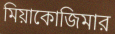
মিয়াকোজিমার